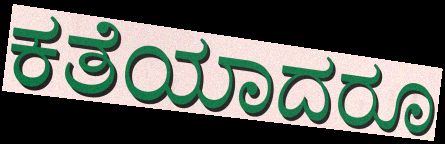
ಕತೆಯಾದರೂ